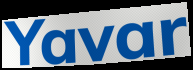
Yavar